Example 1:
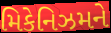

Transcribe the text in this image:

મિકેનિઝમને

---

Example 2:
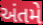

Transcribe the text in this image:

અંતમે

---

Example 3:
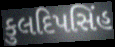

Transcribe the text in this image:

કુલદિપસિંહ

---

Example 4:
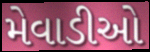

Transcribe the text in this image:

મેવાડીઓ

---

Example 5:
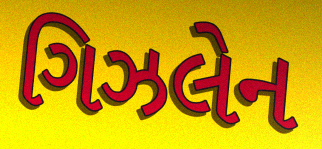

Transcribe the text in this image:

ગિઝલેન